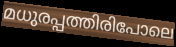
മധുരപ്പത്തിരിപോലെ